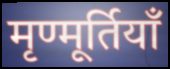
मृण्मूर्तियाँ